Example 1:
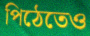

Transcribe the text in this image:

পিঠেতেও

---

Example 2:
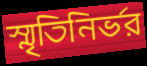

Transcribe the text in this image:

স্মৃতিনির্ভর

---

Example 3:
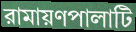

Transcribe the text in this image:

রামায়ণপালাটি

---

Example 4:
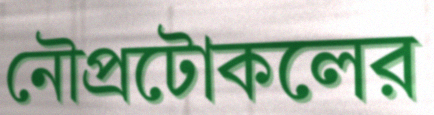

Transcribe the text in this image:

নৌপ্রটোকলের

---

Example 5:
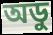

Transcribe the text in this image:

অডু